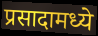
प्रसादामध्ये